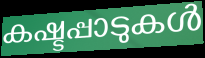
കഷ്ടപ്പാടുകൾ